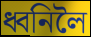
ধ্বনিলৈ